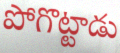
పోగొట్టాడు